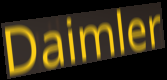
Daimler